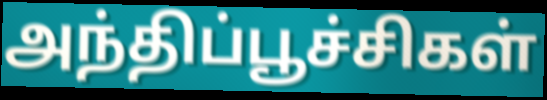
அந்திப்பூச்சிகள்